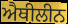
ਐਥੀਲੀਨ